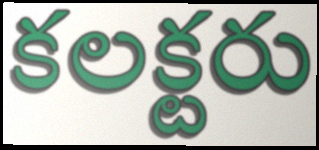
కలక్టరు